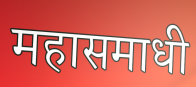
महासमाधी